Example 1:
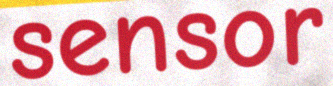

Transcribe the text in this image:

sensor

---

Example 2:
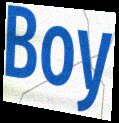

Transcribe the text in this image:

Boy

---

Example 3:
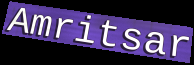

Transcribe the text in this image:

Amritsar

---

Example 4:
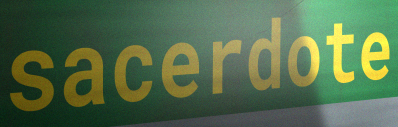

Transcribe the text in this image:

sacerdote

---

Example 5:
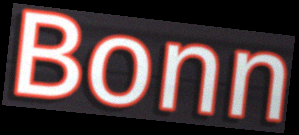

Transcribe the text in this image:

Bonn